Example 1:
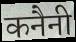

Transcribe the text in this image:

कनैनी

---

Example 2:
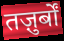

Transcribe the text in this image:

तज़ुर्बों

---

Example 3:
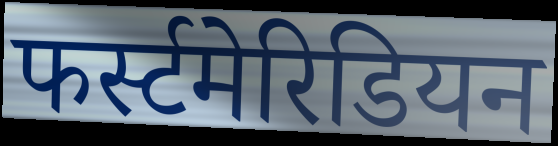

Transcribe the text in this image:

फर्स्टमेरिडियन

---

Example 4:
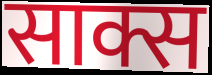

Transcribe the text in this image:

साक्स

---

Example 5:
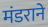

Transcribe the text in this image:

मंडराने